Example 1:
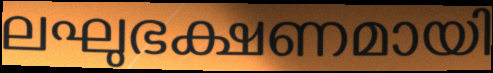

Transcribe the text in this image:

ലഘുഭക്ഷണമായി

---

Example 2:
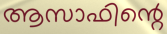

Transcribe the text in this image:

ആസാഫിന്റെ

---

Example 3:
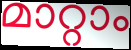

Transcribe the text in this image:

മാറ്റാം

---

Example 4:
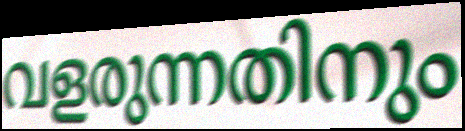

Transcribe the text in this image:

വളരുന്നതിനും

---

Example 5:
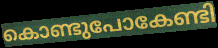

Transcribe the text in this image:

കൊണ്ടുപോകേണ്ടി